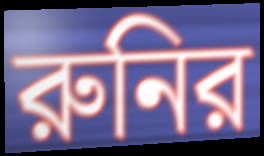
রুনির